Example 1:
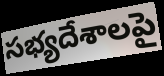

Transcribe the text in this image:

సభ్యదేశాలపై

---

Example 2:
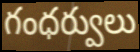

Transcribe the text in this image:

గంధర్వులు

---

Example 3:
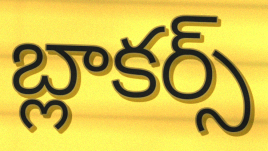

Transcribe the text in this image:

బ్లాకర్స్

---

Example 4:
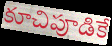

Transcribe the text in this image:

కూచిపూడికే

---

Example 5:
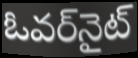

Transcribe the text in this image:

ఓవర్‌నైట్